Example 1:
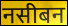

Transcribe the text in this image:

नसीबन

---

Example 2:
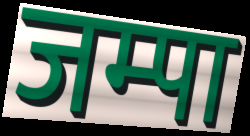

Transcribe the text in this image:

जम्पा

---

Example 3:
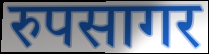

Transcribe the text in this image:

रुपसागर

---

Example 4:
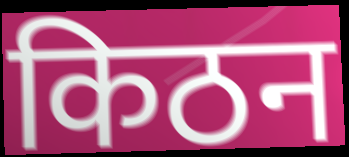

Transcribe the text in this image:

किठन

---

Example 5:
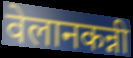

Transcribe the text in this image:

वेलानकन्नी